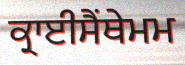
ਕ੍ਰਾਈਸੈਂਥੇਮਮ